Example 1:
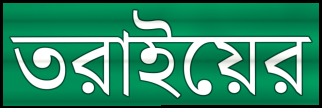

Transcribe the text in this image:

তরাইয়ের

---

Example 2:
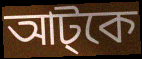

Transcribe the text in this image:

আট্‌কে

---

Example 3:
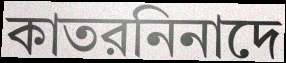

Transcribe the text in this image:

কাতরনিনাদে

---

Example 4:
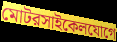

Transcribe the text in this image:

মোটরসাইকেলযোগে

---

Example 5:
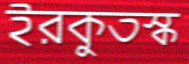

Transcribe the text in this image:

ইরকুতস্ক